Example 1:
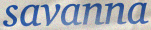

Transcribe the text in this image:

savanna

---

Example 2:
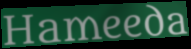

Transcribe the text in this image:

Hameeda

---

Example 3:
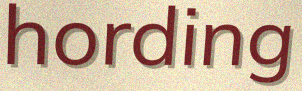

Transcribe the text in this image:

hording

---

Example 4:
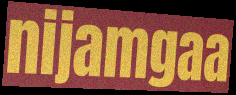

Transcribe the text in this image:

nijamgaa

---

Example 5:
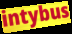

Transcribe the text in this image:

intybus